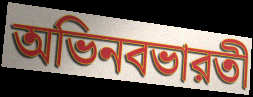
অভিনবভারতী